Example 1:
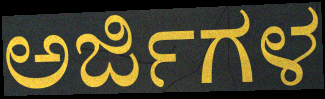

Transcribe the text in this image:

ಅರ್ಜಿಗಳ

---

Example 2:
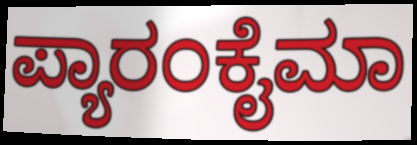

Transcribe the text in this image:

ಪ್ಯಾರಂಕೈಮಾ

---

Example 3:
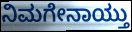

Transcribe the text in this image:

ನಿಮಗೇನಾಯ್ತು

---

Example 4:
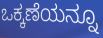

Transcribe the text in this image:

ಒಕ್ಕಣೆಯನ್ನೂ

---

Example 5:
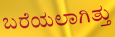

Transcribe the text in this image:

ಬರೆಯಲಾಗಿತ್ತು